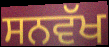
ਸਨਵੱਖ